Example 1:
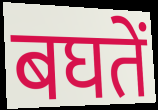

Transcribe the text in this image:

बघतें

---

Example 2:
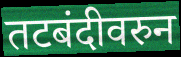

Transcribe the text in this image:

तटबंदीवरुन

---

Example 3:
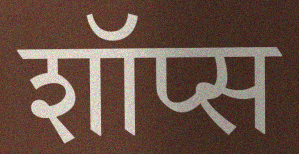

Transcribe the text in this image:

शॉप्स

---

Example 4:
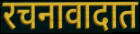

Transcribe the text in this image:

रचनावादात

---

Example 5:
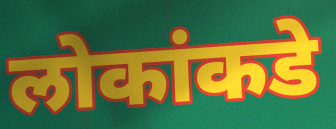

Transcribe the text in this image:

लोकांकडे